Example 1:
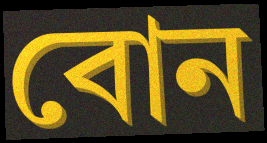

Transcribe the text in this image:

বোন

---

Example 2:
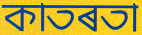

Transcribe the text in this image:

কাতৰতা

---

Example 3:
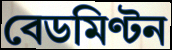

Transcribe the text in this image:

বেডমিণ্টন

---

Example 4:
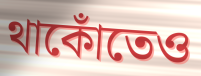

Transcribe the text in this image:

থাকোঁতেও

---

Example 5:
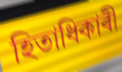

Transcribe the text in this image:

হিতাধিকাৰী